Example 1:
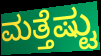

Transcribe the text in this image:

ಮತ್ತೆಷ್ಟು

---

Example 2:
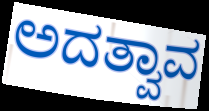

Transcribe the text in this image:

ಅದತ್ವಾವ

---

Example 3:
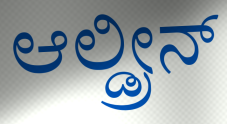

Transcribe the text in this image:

ಆಲ್ಡ್ರೀನ್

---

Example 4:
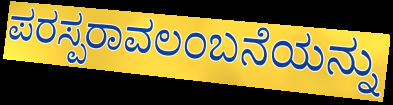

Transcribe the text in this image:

ಪರಸ್ಪರಾವಲಂಬನೆಯನ್ನು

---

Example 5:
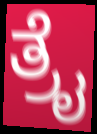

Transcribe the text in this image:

ತ್ರೈ